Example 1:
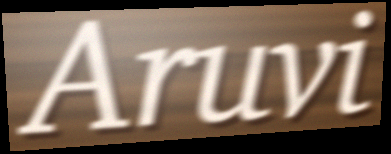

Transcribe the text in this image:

Aruvi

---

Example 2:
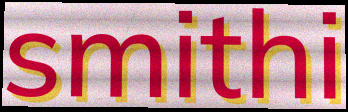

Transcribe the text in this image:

smithi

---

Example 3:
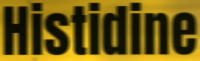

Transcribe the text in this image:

Histidine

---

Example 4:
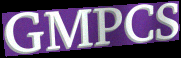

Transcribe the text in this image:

GMPCS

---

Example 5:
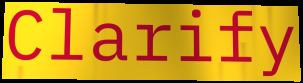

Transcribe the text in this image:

Clarify